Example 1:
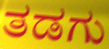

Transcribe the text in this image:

ತಡಗು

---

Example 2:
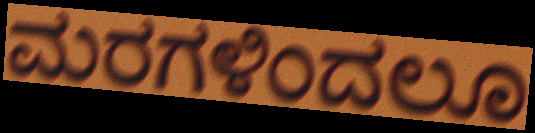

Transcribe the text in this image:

ಮರಗಳಿಂದಲೂ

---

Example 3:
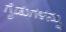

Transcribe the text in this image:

ಗೈಡುಗಳನ್ನು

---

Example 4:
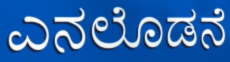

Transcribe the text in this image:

ಎನಲೊಡನೆ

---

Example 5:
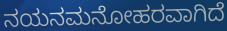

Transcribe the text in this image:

ನಯನಮನೋಹರವಾಗಿದೆ